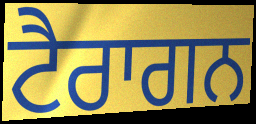
ਟੈਰਾਗਨ